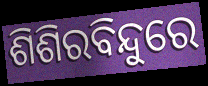
ଶିଶିରବିନ୍ଦୁରେ